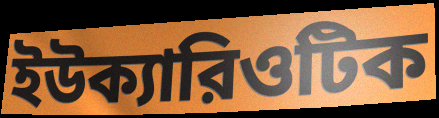
ইউক্যারিওটিক